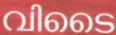
വിടൈ